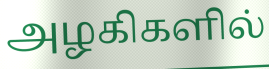
அழகிகளில்